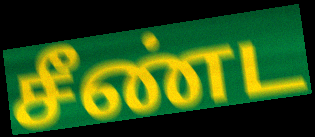
சீண்ட